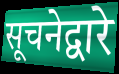
सूचनेद्वारे